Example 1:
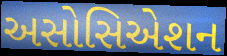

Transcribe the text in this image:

અસોસિએશન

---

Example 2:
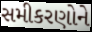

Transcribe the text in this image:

સમીકરણોને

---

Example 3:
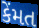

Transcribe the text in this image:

કેંમત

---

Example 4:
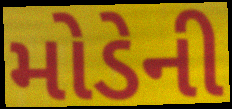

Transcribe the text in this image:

મોડેની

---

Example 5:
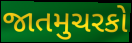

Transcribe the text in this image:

જાતમુચરકો